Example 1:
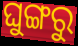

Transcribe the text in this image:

ଘୁଙ୍ଗରୁ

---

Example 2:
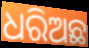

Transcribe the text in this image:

ଧରିଅଛ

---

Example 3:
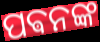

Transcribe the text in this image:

ପଵନଙ୍କ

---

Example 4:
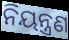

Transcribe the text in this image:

ନିୟନ୍ତ୍ରଣ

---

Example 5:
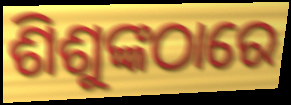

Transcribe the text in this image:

ଶିଶୁଙ୍କଠାରେ